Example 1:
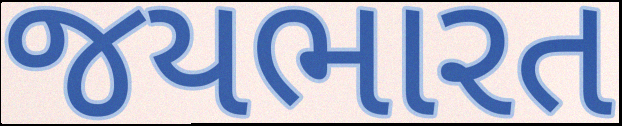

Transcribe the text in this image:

જયભારત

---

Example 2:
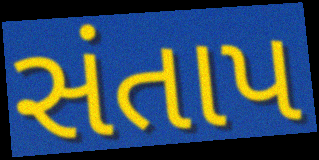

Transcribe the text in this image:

સંતાપ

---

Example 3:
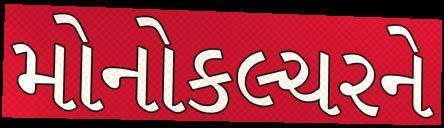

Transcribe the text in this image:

મોનોકલ્ચરને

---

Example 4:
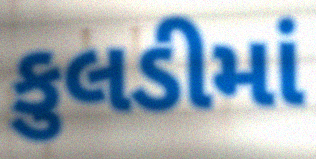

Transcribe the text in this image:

કુલડીમાં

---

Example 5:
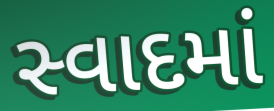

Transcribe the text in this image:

સ્વાદમાં